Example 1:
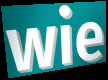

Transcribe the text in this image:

wie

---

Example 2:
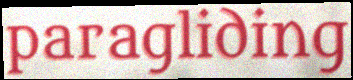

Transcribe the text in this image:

paragliding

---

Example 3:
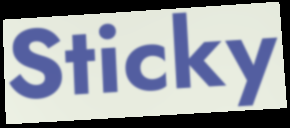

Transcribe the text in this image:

Sticky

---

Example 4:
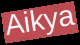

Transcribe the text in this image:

Aikya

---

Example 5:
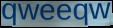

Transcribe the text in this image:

qweeqw